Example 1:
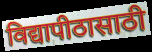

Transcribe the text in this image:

विद्यापीठासाठी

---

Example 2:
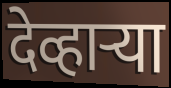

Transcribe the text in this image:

देव्हाऱ्या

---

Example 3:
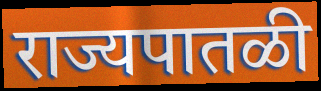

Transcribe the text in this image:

राज्यपातळी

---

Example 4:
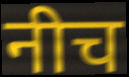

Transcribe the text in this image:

नीच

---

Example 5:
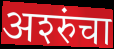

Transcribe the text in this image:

अश्रुंचा